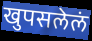
खुपसलेलं